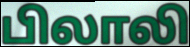
பிலாலி